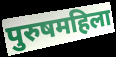
पुरुषमहिला